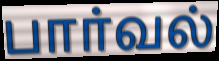
பார்வல்